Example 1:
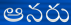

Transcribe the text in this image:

ఆనరు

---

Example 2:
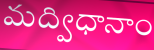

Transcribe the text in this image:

మద్విధానాం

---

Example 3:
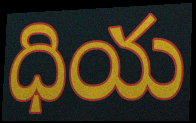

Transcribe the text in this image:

ధియ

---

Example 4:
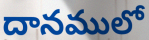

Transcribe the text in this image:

దానములో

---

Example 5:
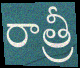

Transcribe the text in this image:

రాత్రీ